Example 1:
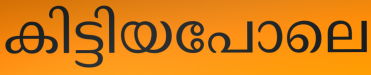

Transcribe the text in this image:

കിട്ടിയപോലെ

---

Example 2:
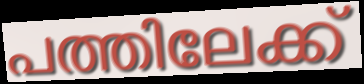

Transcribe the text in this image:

പത്തിലേക്ക്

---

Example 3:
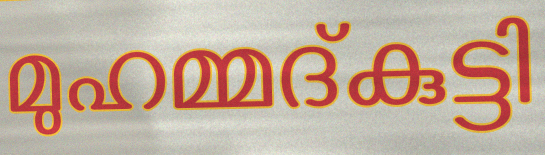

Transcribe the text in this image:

മുഹമ്മദ്കുട്ടി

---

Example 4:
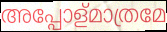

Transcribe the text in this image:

അപ്പോള്മാത്രമേ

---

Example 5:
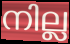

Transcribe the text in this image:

നില്ല